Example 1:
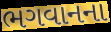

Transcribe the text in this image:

ભગવાનના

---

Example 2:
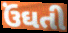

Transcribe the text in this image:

ઉંઘતી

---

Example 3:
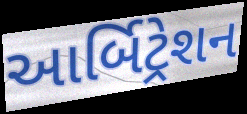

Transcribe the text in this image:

આર્બિટ્રેશન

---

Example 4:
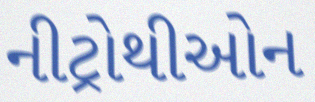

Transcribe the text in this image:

નીટ્રોથીઓન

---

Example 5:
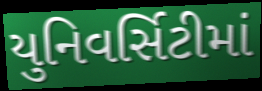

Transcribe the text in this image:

યુનિવર્સિટીમાં